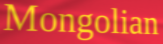
Mongolian